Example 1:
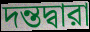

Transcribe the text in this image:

দন্তদ্বারা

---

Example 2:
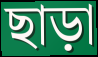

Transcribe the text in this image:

ছাড়া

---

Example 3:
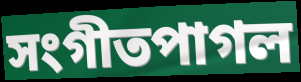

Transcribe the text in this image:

সংগীতপাগল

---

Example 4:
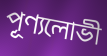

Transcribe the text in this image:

পূণ্যলোভী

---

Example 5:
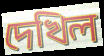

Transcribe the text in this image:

দেখিল